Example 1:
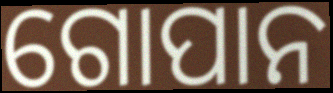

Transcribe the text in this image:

ଗୋପାନ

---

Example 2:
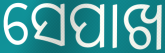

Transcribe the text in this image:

ସେପାଖ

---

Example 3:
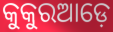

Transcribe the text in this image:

କୁକୁରଆଡ଼େ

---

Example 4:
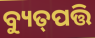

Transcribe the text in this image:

ବ୍ୟୁତ୍‌ପତ୍ତି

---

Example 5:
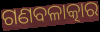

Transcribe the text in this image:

ଗଣବଳାତ୍କାର